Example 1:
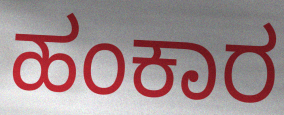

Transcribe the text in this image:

ಹಂಕಾರ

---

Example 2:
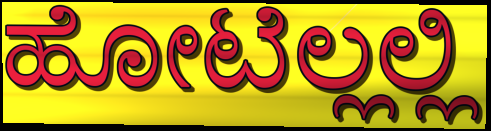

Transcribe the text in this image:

ಹೋಟೆಲ್ಲಲ್ಲಿ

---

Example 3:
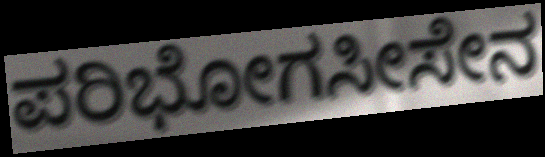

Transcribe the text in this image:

ಪರಿಭೋಗಸೀಸೇನ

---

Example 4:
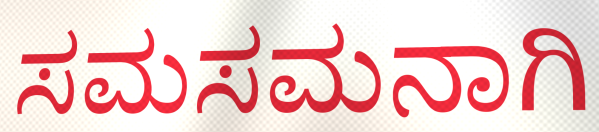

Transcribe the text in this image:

ಸಮಸಮನಾಗಿ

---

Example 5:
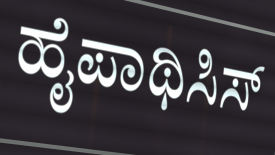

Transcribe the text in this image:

ಹೈಪಾಥಿಸಿಸ್